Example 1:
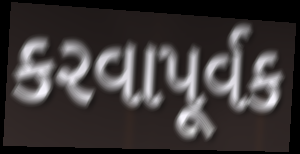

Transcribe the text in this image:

કરવાપૂર્વક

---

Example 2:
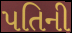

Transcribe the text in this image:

પતિની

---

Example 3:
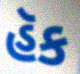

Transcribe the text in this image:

હૅક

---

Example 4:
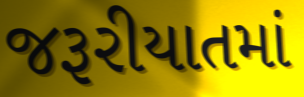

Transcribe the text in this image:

જરૂરીયાતમાં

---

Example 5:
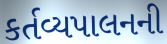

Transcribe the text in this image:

કર્તવ્યપાલનની